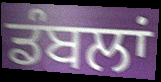
ਡੰਬਲਾਂ